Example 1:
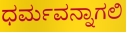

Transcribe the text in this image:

ಧರ್ಮವನ್ನಾಗಲಿ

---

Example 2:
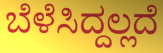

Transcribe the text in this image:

ಬೆಳೆಸಿದ್ದಲ್ಲದೆ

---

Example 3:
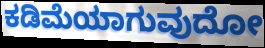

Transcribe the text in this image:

ಕಡಿಮೆಯಾಗುವುದೋ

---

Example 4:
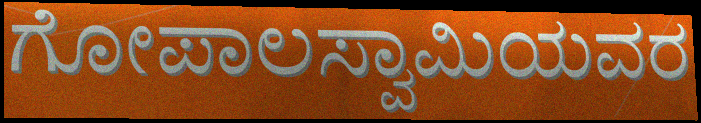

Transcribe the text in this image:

ಗೋಪಾಲಸ್ವಾಮಿಯವರ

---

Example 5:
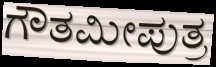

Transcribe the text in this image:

ಗೌತಮೀಪುತ್ರ